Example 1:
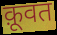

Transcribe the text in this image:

क़ूवत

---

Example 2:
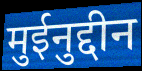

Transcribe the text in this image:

मुईनुद्दीन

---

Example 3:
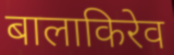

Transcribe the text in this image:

बालाकिरेव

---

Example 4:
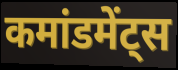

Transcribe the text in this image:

कमांडमेंट्स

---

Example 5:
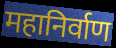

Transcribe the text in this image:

महानिर्वाण